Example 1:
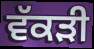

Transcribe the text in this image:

ਵੱਕੜੀ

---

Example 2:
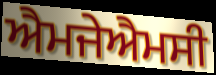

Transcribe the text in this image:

ਐਮਜੇਐਮਸੀ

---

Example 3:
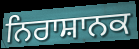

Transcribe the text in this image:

ਨਿਰਾਸ਼ਾਨਕ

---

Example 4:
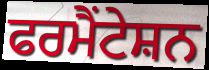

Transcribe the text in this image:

ਫਰਮੈਂਟੇਸ਼ਨ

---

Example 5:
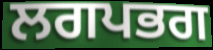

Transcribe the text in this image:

ਲਗਪਭਗ